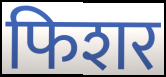
फिशर